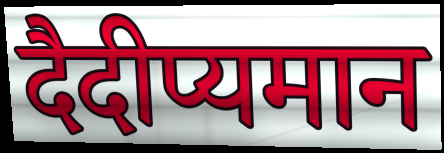
दैदीप्यमान